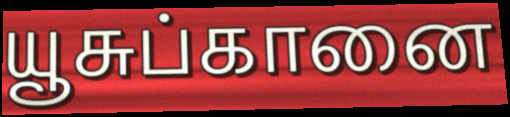
யூசுப்கானை